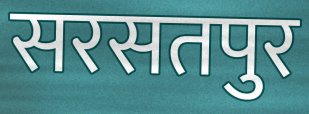
सरसतपुर